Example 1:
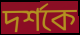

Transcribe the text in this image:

দৰ্শকে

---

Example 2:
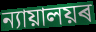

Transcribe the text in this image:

ন্যায়ালয়ৰ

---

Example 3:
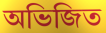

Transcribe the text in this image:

অভিজিত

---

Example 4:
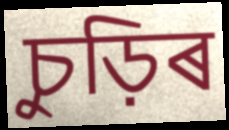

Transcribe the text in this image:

চুড়িৰ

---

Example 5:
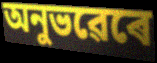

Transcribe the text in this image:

অনুভৱেৰে